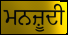
ਮਨਜ਼ੂਦੀ